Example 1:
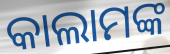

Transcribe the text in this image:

କାଲାମଙ୍କ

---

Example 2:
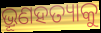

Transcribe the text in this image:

ଭ୍ରୂଣହତ୍ୟାକୁ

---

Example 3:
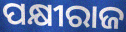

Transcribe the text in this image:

ପକ୍ଷୀରାଜ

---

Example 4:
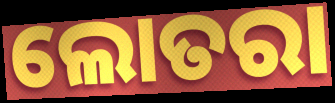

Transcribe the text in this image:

ଲୋତରା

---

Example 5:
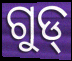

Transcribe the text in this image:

ଗୁଡ୍